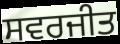
ਸਵਰਜੀਤ